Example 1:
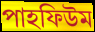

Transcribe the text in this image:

পাহফিউম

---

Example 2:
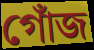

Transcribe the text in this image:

গোঁজ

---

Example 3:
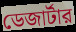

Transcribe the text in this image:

ডেজার্টার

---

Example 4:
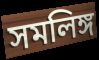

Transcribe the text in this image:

সমলিঙ্গ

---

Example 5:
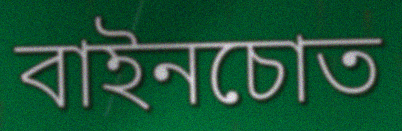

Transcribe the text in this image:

বাইনচোত